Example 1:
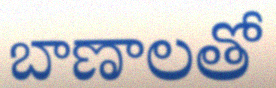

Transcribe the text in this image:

బాణాలతో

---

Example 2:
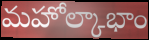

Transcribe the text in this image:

మహోల్కాభాం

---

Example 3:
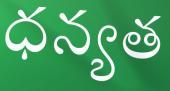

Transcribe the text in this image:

ధన్యత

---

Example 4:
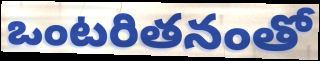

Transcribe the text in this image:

ఒంటరితనంతో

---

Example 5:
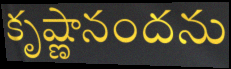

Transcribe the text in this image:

కృష్ణానందను